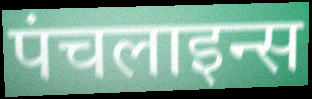
पंचलाइन्स